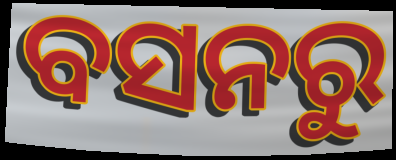
ବସନରୁ